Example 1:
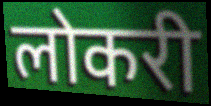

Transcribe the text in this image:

लोकरी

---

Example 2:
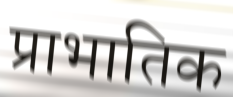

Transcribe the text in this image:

प्राभातिक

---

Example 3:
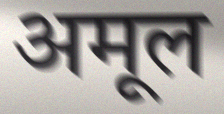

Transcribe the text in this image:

अमूल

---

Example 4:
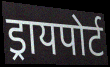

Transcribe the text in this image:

ड्रायपोर्ट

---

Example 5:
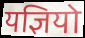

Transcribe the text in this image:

यज्ञियो